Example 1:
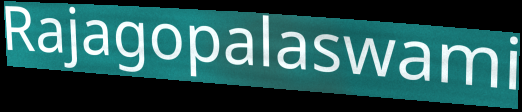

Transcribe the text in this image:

Rajagopalaswami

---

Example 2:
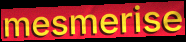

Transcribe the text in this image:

mesmerise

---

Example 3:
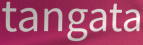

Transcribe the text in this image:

tangata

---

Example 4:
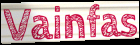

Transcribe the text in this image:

Vainfas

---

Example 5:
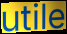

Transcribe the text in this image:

utile